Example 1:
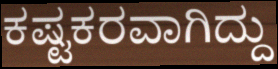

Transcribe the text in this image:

ಕಷ್ಟಕರವಾಗಿದ್ದು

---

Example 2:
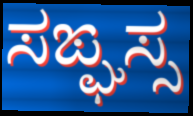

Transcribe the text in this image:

ಸಙ್ಘಸ್ಸ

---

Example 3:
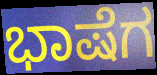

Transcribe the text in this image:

ಭಾಷೆಗ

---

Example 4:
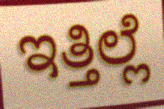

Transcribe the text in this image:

ಇತ್ತಿಲ್ಲೆ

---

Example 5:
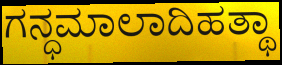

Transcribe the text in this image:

ಗನ್ಧಮಾಲಾದಿಹತ್ಥಾ